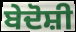
ਬੇਦੋਸ਼ੀ